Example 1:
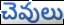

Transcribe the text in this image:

చెవులు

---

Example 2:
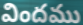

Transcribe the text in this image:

విందము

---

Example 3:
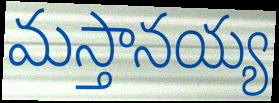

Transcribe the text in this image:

మస్తానయ్య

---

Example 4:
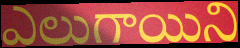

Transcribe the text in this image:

ఎలుగాయిని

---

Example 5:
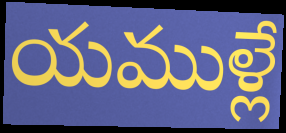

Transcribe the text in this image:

యముళ్లే